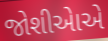
જોશીએાએ